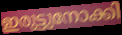
ഇരുട്ടുനോക്കി